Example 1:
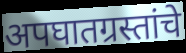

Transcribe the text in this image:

अपघातग्रस्तांचे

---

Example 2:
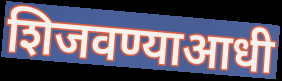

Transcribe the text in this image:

शिजवण्याआधी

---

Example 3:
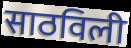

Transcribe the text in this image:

साठविली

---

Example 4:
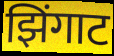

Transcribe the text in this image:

झिंगाट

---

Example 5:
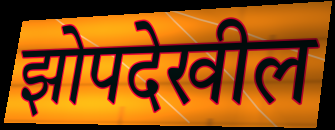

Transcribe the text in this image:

झोपदेखील